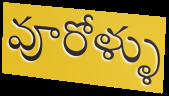
వూరోళ్ళు